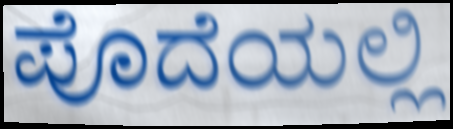
ಪೊದೆಯಲ್ಲಿ